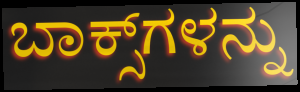
ಬಾಕ್ಸ್‌ಗಳನ್ನು